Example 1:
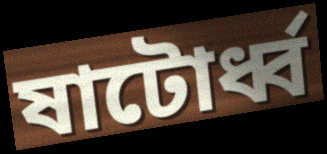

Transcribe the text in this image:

ষাটোর্ধ্ব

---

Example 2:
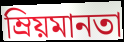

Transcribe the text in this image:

ম্রিয়মানতা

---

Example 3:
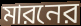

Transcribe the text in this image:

মারনের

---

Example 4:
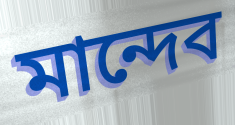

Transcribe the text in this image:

মান্দেব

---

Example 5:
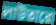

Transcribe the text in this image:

লাউতারো